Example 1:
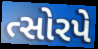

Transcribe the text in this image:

ત્સોરપે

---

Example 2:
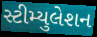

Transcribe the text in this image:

સ્ટીમ્યુલેશન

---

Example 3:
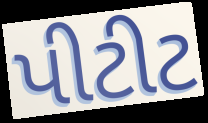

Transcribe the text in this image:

પીટીટ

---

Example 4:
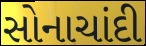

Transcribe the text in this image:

સોનાચાંદી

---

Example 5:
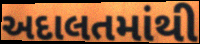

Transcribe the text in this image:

અદાલતમાંથી